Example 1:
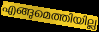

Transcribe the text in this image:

എങ്ങുമെത്തിയില്ല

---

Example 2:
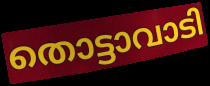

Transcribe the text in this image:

തൊട്ടാവാടി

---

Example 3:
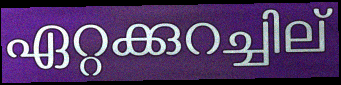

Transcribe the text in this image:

ഏറ്റക്കുറച്ചില്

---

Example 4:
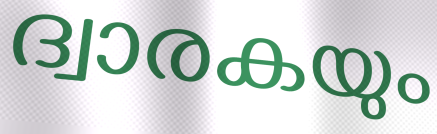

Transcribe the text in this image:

ദ്വാരകയും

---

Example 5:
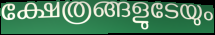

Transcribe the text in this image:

ക്ഷേത്രങ്ങളുടേയും